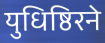
युधिष्ठिरने